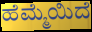
ಹೆಮ್ಮೆಯಿದೆ